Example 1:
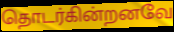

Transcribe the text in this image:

தொடர்கின்றனவே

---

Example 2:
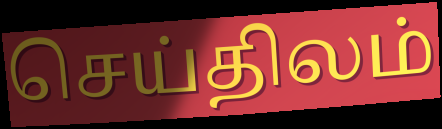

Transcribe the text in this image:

செய்திலம்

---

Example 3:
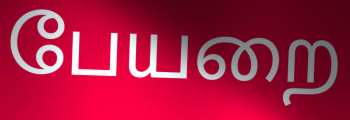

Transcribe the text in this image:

பேயறை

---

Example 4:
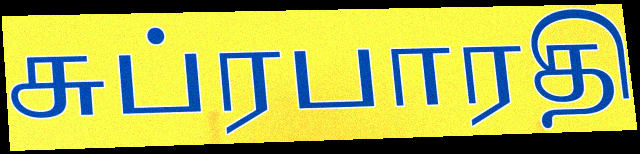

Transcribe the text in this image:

சுப்ரபாரதி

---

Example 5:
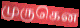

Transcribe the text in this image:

முருகென